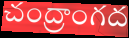
చంద్రాంగద